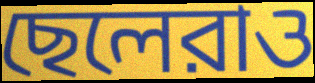
ছেলেরাও